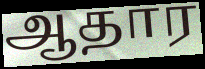
ஆதார